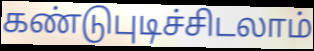
கண்டுபுடிச்சிடலாம்